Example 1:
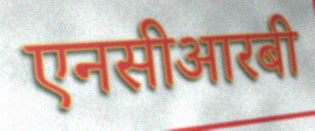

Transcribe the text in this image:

एनसीआरबी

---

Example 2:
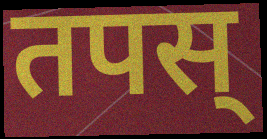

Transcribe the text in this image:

तपस्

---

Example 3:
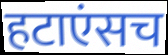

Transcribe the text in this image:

हटाएंसच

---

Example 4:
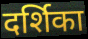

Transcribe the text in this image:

दर्शिका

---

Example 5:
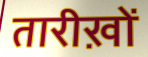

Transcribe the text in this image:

तारीख़ों